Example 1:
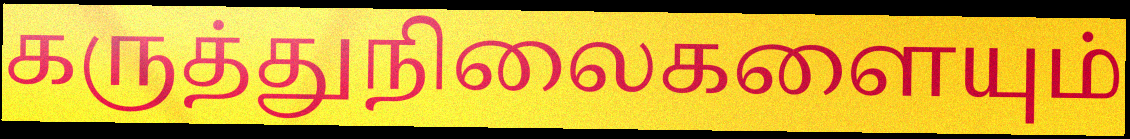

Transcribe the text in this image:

கருத்துநிலைகளையும்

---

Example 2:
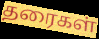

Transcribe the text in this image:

தரைகள்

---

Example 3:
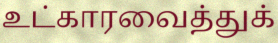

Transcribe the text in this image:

உட்காரவைத்துக்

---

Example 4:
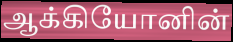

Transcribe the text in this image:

ஆக்கியோனின்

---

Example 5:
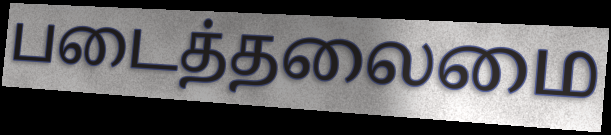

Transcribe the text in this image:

படைத்தலைமை